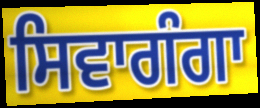
ਸਿਵਾਗੰਗਾ